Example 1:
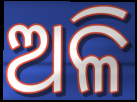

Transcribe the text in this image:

ଅଳି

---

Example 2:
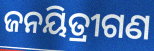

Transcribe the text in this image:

ଜନୟିତ୍ରୀଗଣ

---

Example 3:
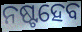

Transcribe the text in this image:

ନଷ୍ଟହେବ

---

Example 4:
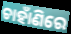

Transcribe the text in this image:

ଚାହାଁଣିରେ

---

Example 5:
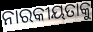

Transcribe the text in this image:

ନାରକୀୟତାକୁ